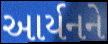
આર્યનને